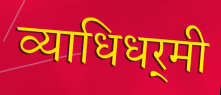
व्याधिधर्मी